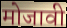
मोजावी